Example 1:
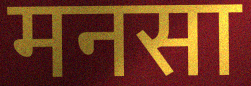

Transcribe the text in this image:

मनसा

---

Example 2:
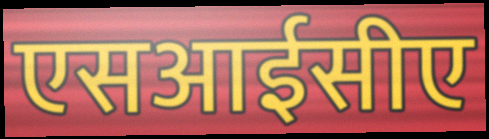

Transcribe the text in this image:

एसआईसीए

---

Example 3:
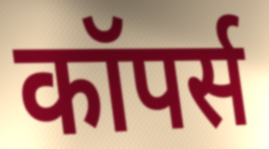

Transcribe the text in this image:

कॉपर्स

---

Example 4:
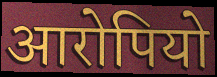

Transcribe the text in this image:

आरोपियो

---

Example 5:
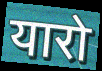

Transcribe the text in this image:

यारो